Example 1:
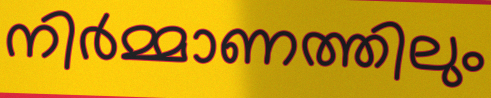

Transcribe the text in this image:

നിർമ്മാണത്തിലും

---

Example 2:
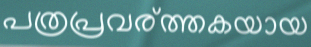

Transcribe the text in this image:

പത്രപ്രവര്ത്തകയായ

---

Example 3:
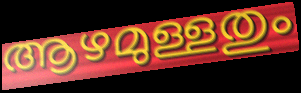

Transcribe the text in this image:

ആഴമുള്ളതും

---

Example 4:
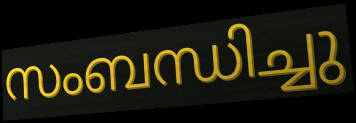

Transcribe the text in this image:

സംബന്ധിച്ചു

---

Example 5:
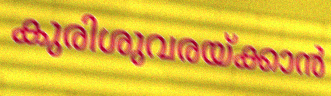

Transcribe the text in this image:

കുരിശുവരയ്ക്കാൻ